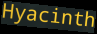
Hyacinth